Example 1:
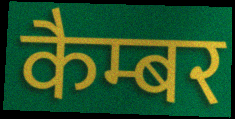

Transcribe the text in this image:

कैम्बर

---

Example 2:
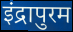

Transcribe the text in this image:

इंद्रापुरम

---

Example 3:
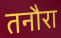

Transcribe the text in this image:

तनौरा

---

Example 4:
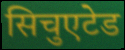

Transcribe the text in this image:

सिचुएटेड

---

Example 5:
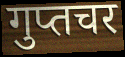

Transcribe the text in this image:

गुप्तचर